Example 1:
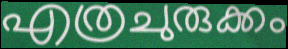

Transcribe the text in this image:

എത്രചുരുക്കം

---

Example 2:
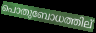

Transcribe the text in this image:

പൊതുബോധത്തില്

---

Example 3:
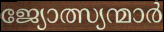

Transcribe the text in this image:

ജ്യോത്സ്യന്മാർ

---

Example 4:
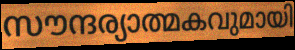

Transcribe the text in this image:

സൗന്ദര്യാത്മകവുമായി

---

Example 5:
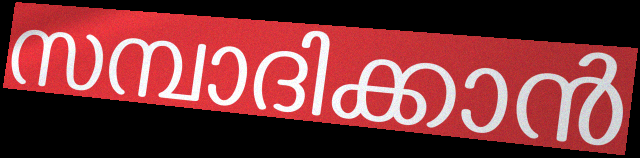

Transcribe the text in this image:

സമ്പാദിക്കാൻ